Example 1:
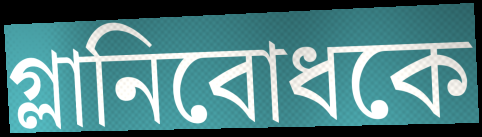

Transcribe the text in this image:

গ্লানিবোধকে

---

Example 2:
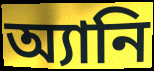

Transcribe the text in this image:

অ্যানি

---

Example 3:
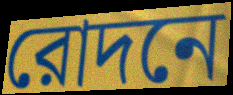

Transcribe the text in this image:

রোদনে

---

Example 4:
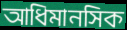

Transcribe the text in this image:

আধিমানসিক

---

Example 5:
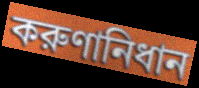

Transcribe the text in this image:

করুণানিধান